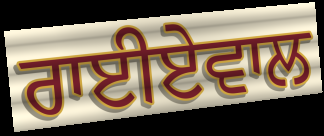
ਰਾਈਏਵਾਲ